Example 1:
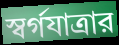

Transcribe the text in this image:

স্বর্গযাত্রার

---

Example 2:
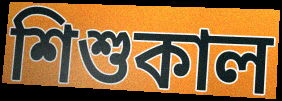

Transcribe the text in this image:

শিশুকাল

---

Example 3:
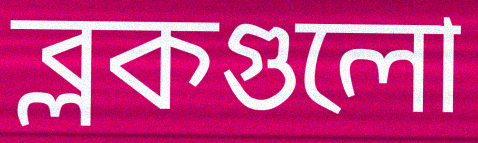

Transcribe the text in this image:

ব্লকগুলো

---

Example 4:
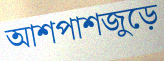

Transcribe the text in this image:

আশপাশজুড়ে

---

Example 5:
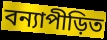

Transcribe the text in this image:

বন্যাপীড়িত